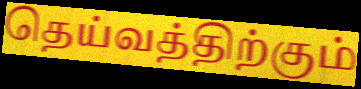
தெய்வத்திற்கும்